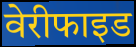
वेरीफाइड